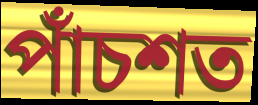
পাঁচশত